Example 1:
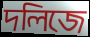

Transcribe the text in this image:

দলিজে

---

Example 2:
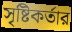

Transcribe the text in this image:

সৃষ্টিকর্তার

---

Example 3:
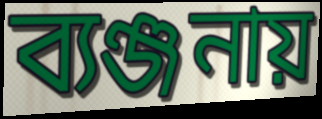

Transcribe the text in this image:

ব্যঞ্জনায়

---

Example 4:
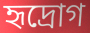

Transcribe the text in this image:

হৃদ্রোগ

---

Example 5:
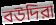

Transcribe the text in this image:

বউদিরা